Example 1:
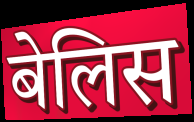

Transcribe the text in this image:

बेलिस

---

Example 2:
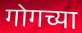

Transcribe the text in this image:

गोगच्या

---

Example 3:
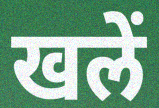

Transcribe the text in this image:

खलें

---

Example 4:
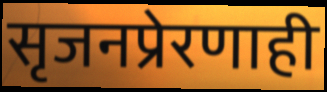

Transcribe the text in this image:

सृजनप्रेरणाही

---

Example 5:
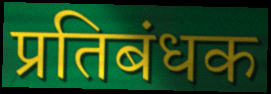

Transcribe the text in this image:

प्रतिबंधक